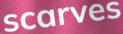
scarves